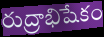
రుద్రాభిషేకం